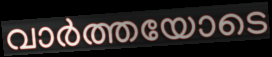
വാർത്തയോടെ